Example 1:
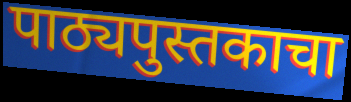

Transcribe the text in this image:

पाठ्यपुस्तकाचा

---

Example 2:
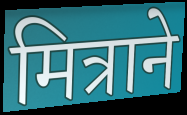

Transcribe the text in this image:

मित्राने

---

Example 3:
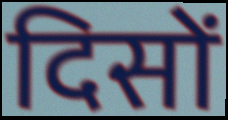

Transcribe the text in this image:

दिसों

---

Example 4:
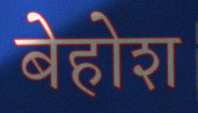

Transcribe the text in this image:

बेहोश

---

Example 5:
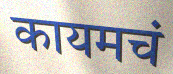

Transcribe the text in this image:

कायमचं